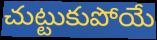
చుట్టుకుపోయే